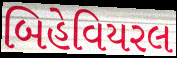
બિહેવિયરલ